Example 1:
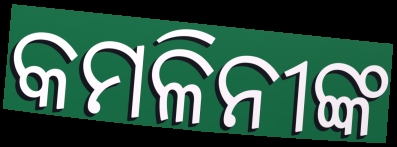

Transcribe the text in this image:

କମଳିନୀଙ୍କ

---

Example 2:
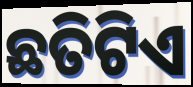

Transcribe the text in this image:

ଛତିଟିଏ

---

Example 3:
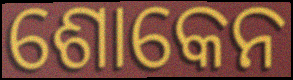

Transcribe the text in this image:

ଶୋକେନ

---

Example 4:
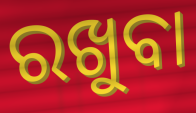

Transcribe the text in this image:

ରଖୁବା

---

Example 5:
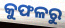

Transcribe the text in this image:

କୁଫଳରୁ